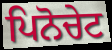
ਪਿਨੋਚੇਟ